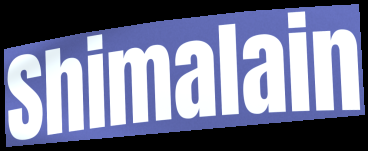
Shimalain